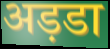
अड़डा